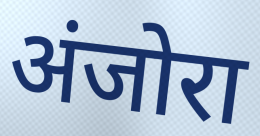
अंजोरा